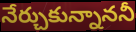
నేర్చుకున్నాననీ